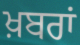
ਖ਼ਬਰਾਂ